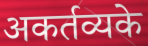
अकर्तव्यके